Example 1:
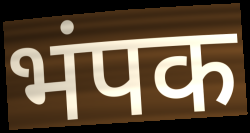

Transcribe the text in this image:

भंपक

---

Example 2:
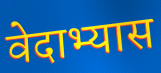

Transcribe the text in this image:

वेदाभ्यास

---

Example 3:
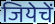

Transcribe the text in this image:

जियेचें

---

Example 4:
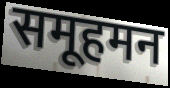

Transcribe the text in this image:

समूहमन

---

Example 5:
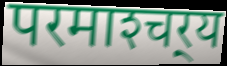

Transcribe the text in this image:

परमाश्चर्य